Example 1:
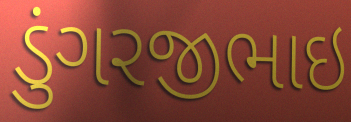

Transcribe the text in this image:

ડુંગરજીભાઇ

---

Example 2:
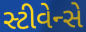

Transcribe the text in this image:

સ્ટીવેન્સે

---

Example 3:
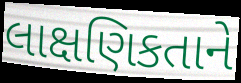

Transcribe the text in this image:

લાક્ષણિકતાને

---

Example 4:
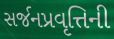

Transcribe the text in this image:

સર્જનપ્રવૃત્તિની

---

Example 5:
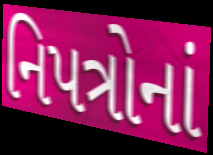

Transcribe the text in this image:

નિપત્રોનાં